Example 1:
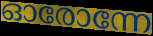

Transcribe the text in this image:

ഓരോന്നേ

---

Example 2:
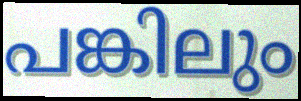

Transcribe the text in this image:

പങ്കിലും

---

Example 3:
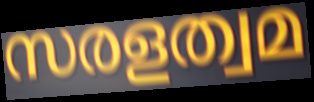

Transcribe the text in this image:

സരളത്വമ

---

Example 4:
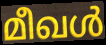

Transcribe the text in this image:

മീഖൾ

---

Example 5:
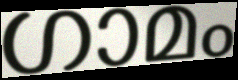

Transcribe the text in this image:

ഗാമം